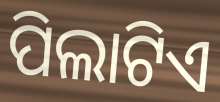
ପିଲାଟିଏ